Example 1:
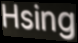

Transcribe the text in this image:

Hsing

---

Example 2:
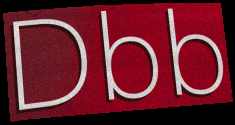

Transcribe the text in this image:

Dbb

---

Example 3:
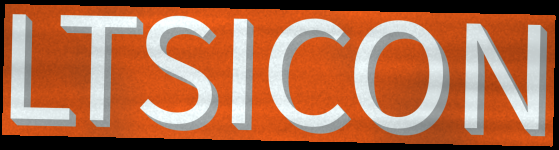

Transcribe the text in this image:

LTSICON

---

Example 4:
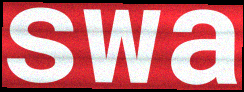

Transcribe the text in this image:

swa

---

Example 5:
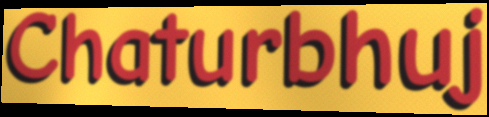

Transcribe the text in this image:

Chaturbhuj